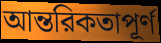
আন্তরিকতাপূর্ণ